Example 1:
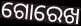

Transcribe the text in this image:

ଗୋରେଖ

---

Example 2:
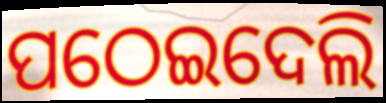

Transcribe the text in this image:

ପଠେଇଦେଲି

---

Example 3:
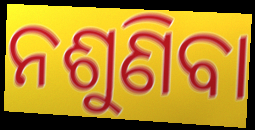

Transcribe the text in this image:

ନଶୁଣିବା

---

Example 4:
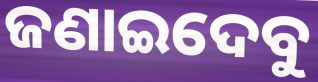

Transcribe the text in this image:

ଜଣାଇଦେବୁ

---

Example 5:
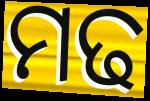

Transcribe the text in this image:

ମଢ